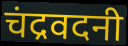
चंद्रवदनी